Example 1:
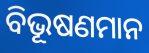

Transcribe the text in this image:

ବିଭୂଷଣମାନ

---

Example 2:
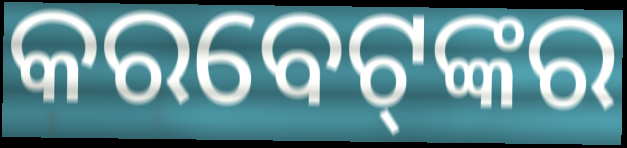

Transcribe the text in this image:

କରବେଟ୍‌ଙ୍କର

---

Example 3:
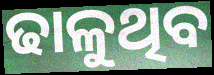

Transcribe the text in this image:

ଢାଳୁଥିବ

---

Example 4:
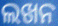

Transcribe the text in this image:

ଲଖନ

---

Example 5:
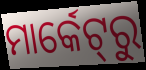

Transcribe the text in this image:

ମାର୍କେଟ୍‌ରୁ